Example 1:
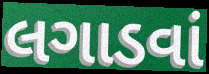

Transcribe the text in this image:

લગાડવાં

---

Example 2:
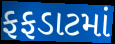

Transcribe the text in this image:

ફફડાટમાં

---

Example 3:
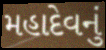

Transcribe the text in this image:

મહાદેવનું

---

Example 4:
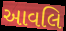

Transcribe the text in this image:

આવલિ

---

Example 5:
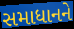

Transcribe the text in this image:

સમાધાનને